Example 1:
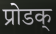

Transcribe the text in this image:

प्रोडक्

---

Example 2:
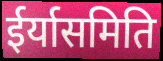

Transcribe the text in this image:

ईर्यासमिति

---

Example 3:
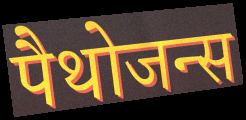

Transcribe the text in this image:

पैथोजन्स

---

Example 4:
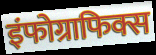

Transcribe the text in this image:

इंफोग्राफिक्स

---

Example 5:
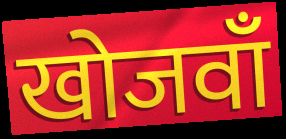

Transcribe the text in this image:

खोजवाँ